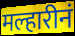
मल्हारीनं